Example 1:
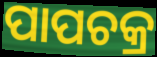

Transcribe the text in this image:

ପାପଚକ୍ର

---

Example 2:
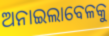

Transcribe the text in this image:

ଅନାଇଲାବେଳକୁ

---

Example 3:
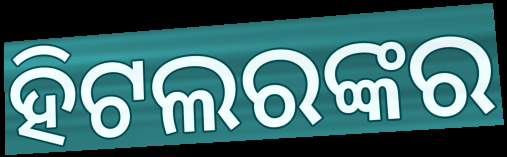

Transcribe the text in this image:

ହିଟଲରଙ୍କର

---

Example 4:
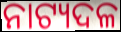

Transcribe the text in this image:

ନାଟ୍ୟଦଳ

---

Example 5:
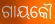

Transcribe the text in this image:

ଗାୟକୌ